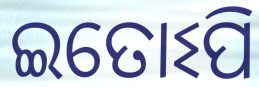
ଇତୋଽପି